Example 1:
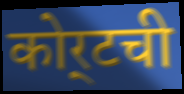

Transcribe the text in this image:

कोर्टची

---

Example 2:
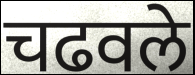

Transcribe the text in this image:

चढवले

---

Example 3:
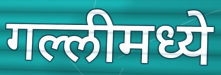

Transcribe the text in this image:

गल्लीमध्ये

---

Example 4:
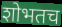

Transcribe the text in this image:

शोभतच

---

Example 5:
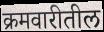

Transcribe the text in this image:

क्रमवारीतील